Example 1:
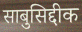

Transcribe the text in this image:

साबुसिद्दीक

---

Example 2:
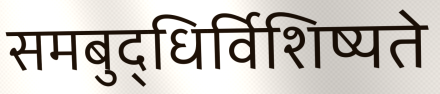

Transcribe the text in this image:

समबुद्धिर्विशिष्यते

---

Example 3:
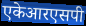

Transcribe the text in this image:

एकेआरएसपी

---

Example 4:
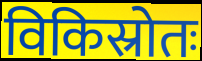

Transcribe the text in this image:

विकिस्रोतः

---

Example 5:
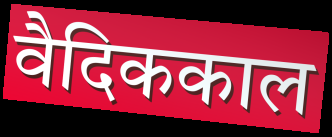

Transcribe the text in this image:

वैदिककाल